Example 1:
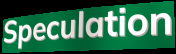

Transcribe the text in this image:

Speculation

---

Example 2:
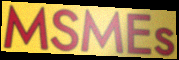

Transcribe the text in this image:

MSMEs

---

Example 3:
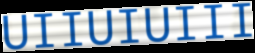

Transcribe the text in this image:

UIIUIUIII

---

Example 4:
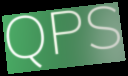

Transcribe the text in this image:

QPS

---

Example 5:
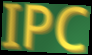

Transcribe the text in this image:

IPC